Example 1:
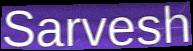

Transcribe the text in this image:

Sarvesh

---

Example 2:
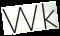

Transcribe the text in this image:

Wk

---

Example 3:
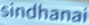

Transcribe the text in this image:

sindhanai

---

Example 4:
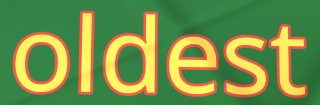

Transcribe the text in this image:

oldest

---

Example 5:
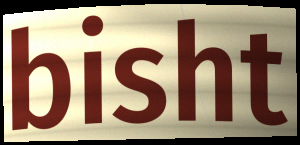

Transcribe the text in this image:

bisht